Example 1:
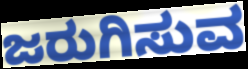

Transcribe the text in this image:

ಜರುಗಿಸುವ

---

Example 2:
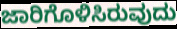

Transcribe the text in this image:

ಜಾರಿಗೊಳಿಸಿರುವುದು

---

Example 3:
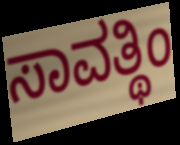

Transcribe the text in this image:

ಸಾವತ್ಥಿಂ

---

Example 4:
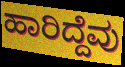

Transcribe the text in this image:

ಹಾರಿದ್ದೆವು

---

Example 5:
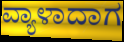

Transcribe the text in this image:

ವ್ಯಾಳಾದಾಗ